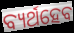
ବ୍ୟର୍ଥହେବ